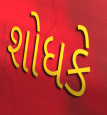
શોધકે